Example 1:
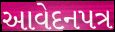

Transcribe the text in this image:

આવેદનપત્ર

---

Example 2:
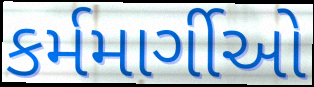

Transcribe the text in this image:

કર્મમાર્ગીઓ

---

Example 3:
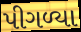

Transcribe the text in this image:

પીગળ્યા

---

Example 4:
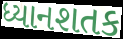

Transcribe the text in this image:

ધ્યાનશતક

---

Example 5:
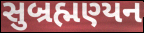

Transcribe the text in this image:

સુબ્રહ્મણ્યન